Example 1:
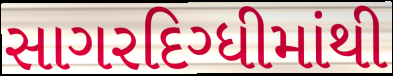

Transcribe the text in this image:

સાગરદિગ્ધીમાંથી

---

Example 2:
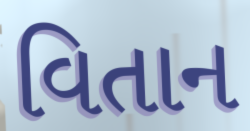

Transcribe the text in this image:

વિતાન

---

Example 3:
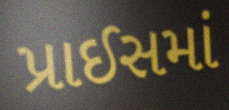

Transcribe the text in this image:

પ્રાઈસમાં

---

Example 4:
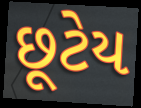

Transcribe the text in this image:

છૂટેય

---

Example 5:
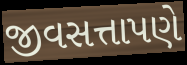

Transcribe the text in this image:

જીવસત્તાપણે